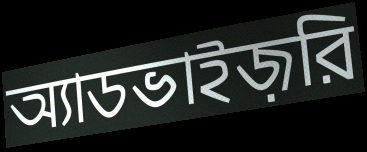
অ্যাডভাইজ়রি